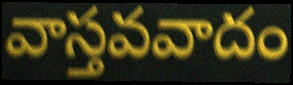
వాస్తవవాదం